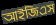
আইজিএস